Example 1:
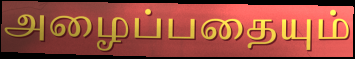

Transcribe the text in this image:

அழைப்பதையும்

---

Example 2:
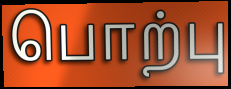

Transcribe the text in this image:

பொற்பு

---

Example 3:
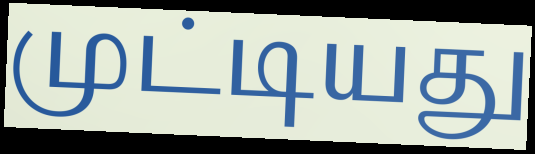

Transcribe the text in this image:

முட்டியது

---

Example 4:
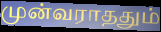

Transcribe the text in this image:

முன்வராததும்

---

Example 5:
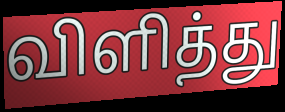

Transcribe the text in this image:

விளித்து